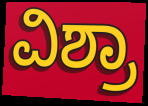
ವಿಶ್ರಾ